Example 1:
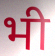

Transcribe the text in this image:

भी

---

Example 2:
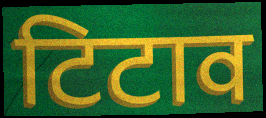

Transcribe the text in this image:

टिटाव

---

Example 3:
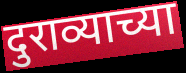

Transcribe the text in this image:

दुराव्याच्या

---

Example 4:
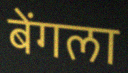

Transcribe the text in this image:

बेंगला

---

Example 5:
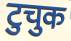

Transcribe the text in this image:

टुचुक